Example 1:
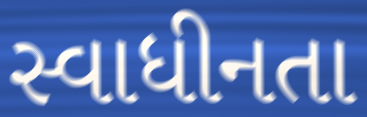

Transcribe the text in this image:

સ્વાધીનતા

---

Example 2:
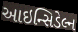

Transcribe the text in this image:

આઇન્સિડેલ્ન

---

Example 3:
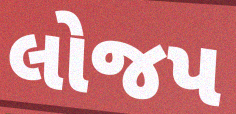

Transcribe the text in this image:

લોજપ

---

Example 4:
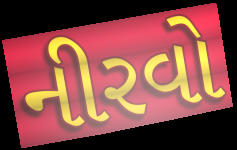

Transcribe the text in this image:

નીરવો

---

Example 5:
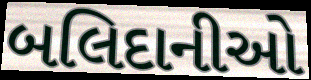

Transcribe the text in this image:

બલિદાનીઓ